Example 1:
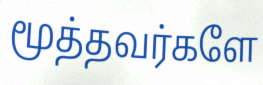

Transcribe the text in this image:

மூத்தவர்களே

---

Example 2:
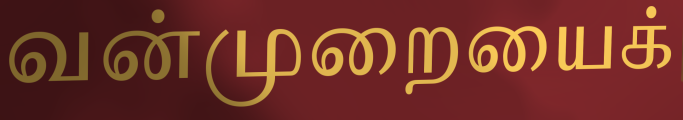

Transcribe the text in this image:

வன்முறையைக்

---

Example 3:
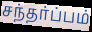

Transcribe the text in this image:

சந்தர்ப்பம்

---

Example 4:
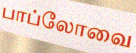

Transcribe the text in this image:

பாப்லோவை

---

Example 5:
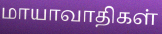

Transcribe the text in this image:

மாயாவாதிகள்